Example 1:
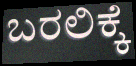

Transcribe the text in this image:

ಬರಲಿಕ್ಕೆ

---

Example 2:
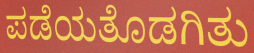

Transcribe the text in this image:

ಪಡೆಯತೊಡಗಿತು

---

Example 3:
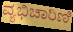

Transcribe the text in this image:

ವ್ಯಭಿಚಾರಿಣಿ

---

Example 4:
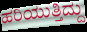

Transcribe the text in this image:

ಹರಿಯುತ್ತಿದ್ದು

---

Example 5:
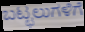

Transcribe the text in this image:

ಬಟ್ಟಲುಗಳಿಗೆ